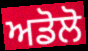
ਅਡੋਲੋ